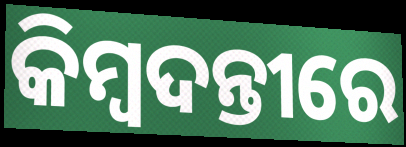
କିମ୍ବଦନ୍ତୀରେ